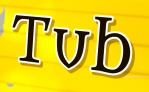
Tub